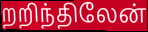
றறிந்திலேன்